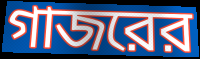
গাজরের